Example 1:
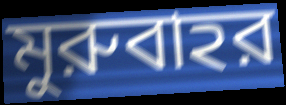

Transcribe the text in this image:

মুরুবাহর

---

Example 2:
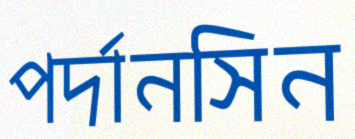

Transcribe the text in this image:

পর্দানসিন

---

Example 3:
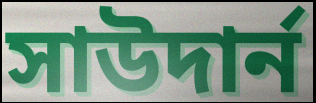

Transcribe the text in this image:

সাউদার্ন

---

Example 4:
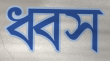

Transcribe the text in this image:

ধ্বস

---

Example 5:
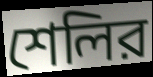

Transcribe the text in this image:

শেলির